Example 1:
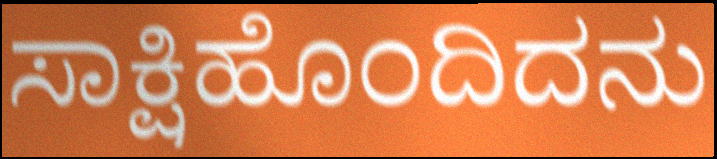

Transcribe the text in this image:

ಸಾಕ್ಷಿಹೊಂದಿದನು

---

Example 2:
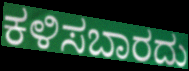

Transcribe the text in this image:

ಕಳಿಸಬಾರದು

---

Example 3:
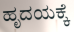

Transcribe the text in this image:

ಹೃದಯಕ್ಕೆ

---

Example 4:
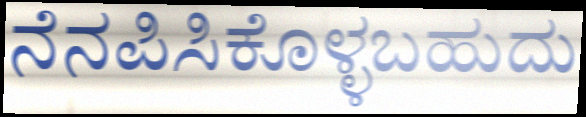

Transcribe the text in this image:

ನೆನಪಿಸಿಕೊಳ್ಳಬಹುದು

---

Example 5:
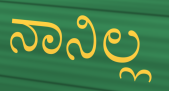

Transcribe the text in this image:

ನಾನಿಲ್ಲ